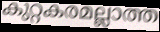
കുറ്റകരമല്ലാത്ത